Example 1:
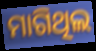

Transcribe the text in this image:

ମାଗିଥିଲ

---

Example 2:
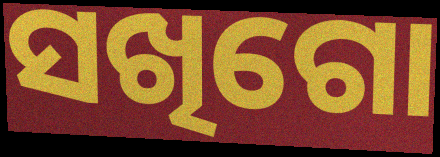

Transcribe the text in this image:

ସଖିଗୋ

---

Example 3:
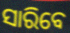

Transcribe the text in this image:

ସାରିବେ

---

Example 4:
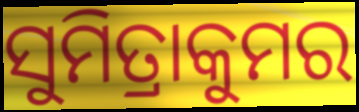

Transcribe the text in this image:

ସୁମିତ୍ରାକୁମର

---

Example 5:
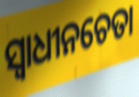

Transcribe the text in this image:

ସ୍ବାଧୀନଚେତା